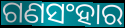
ଗଣସଂହାର